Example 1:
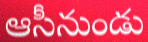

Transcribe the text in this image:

ఆసీనుండు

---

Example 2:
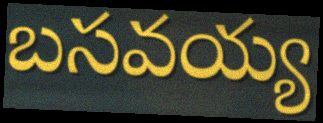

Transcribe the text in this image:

బసవయ్య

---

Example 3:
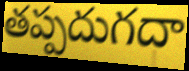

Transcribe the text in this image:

తప్పదుగదా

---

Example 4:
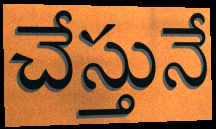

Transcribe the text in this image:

చేస్తునే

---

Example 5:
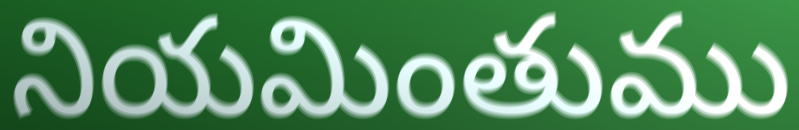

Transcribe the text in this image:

నియమింతుము